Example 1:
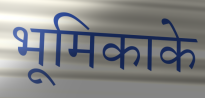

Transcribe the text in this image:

भूमिकाके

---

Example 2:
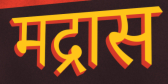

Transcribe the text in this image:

मद्रास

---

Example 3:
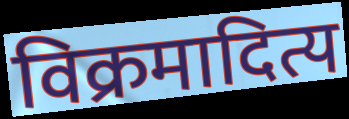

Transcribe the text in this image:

विक्रमादित्य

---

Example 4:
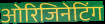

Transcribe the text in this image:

ओरिजिनेटिंग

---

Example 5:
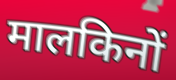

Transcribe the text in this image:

मालकिनों